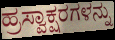
ಹ್ರಸ್ವಾಕ್ಷರಗಳನ್ನು